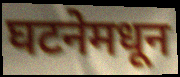
घटनेमधून